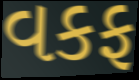
વકફ